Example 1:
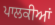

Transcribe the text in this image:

ਪਾਲਕੀਆਂ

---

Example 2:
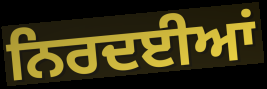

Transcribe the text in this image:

ਨਿਰਦਈਆਂ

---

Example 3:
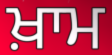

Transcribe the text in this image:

ਖ਼ਾਮ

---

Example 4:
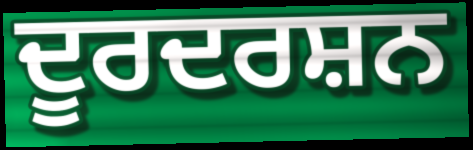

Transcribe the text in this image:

ਦੂਰਦਰਸ਼ਨ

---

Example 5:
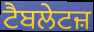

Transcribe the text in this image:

ਟੈਬਲੇਟਜ਼